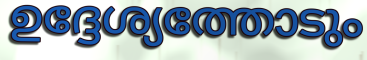
ഉദ്ദേശ്യത്തോടും